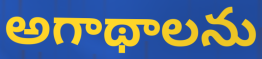
అగాథాలను